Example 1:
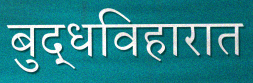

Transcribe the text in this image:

बुद्धविहारात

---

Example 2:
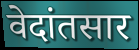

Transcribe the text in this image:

वेदांतसार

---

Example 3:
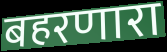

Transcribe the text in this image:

बहरणारा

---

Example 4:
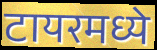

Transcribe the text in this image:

टायरमध्ये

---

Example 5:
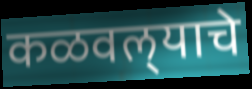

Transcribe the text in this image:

कळवल्याचे